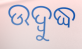
ଉଦ୍ବୁଦ୍ଧ